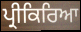
ਪ੍ਰੀਕਿਰਿਆ